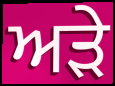
ਅੜੇ